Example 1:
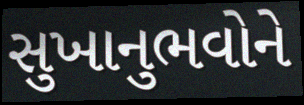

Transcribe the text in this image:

સુખાનુભવોને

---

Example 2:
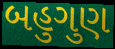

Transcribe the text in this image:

બહુગુણ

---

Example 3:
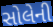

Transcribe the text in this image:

સોલેની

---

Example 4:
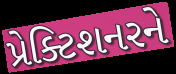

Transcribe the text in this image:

પ્રેક્ટિશનરને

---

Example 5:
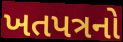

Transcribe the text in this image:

ખતપત્રનો